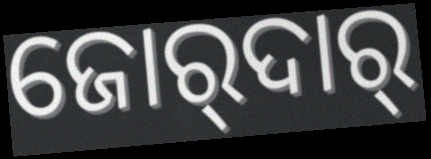
ଜୋର୍‍ଦାର୍